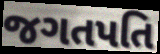
જગતપતિ